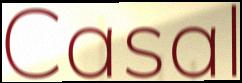
Casal